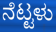
ನೆಟ್ಟಳು